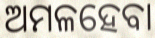
ଅମଳହେବା